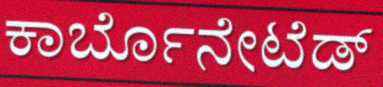
ಕಾರ್ಬೊನೇಟೆಡ್